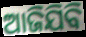
ଆଜିଯିବି